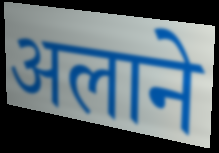
अलाने